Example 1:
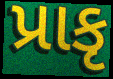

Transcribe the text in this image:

પ્રાકૃ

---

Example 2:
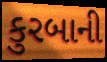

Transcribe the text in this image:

કુરબાની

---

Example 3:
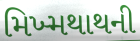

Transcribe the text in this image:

મિખ્મથાથની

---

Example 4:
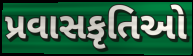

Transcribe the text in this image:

પ્રવાસકૃતિઓ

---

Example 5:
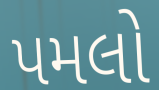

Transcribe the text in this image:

પમલો